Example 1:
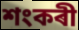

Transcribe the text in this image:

শংকৰী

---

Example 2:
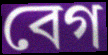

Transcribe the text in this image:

বেগ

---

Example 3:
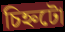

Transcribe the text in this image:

চিহ্নটো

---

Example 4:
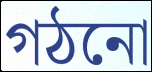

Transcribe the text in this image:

গঠনো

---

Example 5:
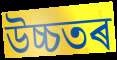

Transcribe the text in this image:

উচ্চতৰ